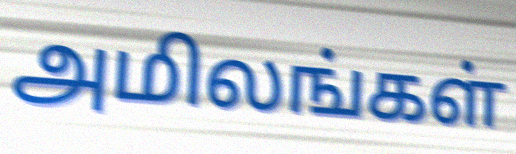
அமிலங்கள்